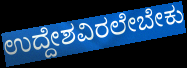
ಉದ್ದೇಶವಿರಲೇಬೇಕು